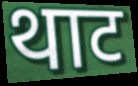
थाट